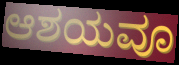
ಆಶಯವೂ